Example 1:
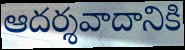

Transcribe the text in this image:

ఆదర్శవాదానికి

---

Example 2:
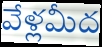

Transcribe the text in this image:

వేళ్లమీద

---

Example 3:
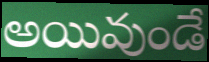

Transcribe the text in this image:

అయివుండే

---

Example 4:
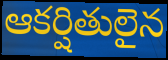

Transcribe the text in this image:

ఆకర్షితులైన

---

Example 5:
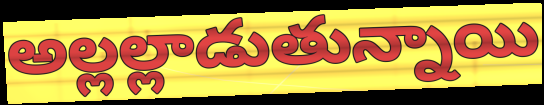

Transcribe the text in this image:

అల్లల్లాడుతున్నాయి